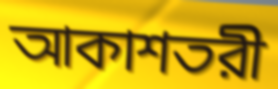
আকাশতরী